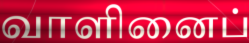
வாளினைப்